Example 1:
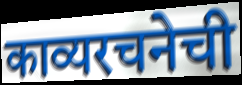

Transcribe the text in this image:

काव्यरचनेची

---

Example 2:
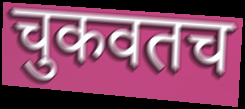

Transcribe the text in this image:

चुकवतच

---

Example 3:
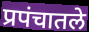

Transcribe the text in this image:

प्रपंचातले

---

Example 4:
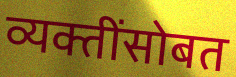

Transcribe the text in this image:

व्यक्‍तींसोबत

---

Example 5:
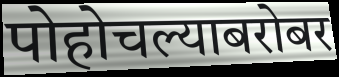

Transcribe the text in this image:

पोहोचल्याबरोबर